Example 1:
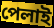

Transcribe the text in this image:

পেলাই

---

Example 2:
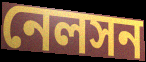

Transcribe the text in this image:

নেলসন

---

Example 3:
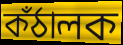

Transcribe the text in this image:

কঁঠালক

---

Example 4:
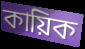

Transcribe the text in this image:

কায়িক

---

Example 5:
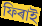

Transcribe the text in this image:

ফিৰাই